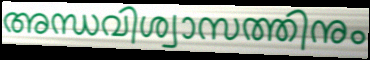
അന്ധവിശ്വാസത്തിനും